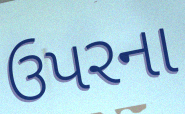
ઉપરના